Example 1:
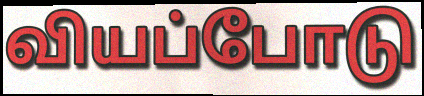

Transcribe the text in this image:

வியப்போடு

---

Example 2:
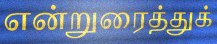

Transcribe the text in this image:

என்றுரைத்துக்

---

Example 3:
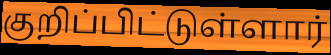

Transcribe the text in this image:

குறிப்பிட்டுள்ளார்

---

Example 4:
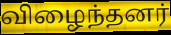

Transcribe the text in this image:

விழைந்தனர்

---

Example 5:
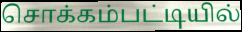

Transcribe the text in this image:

சொக்கம்பட்டியில்